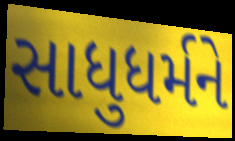
સાધુધર્મને